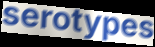
serotypes